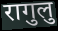
रागुलु